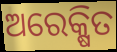
ଅରେକ୍ଷିତ